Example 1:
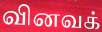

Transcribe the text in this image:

வினவக்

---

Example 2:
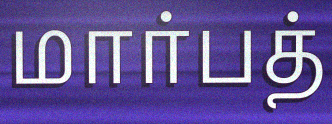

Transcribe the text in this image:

மார்பத்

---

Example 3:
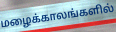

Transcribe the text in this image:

மழைக்காலங்களில்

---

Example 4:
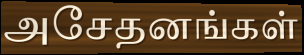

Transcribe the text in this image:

அசேதனங்கள்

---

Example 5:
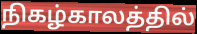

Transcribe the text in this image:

நிகழ்காலத்தில்